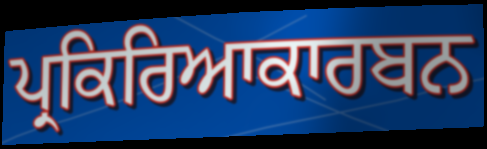
ਪ੍ਰਕਿਰਿਆਕਾਰਬਨ